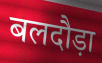
बलदौड़ा